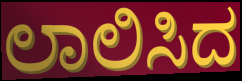
ಲಾಲಿಸಿದ